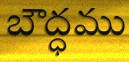
బౌద్ధము